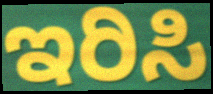
ಇರಿಸಿ